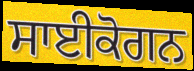
ਸਾਈਕੋਗਨ